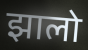
झालो